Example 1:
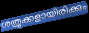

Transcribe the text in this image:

ശത്രുക്കളായിരിക്കും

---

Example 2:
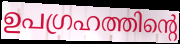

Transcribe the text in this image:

ഉപഗ്രഹത്തിന്റെ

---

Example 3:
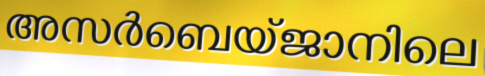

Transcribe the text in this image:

അസർബെയ്ജാനിലെ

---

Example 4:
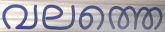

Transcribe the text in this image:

വലത്തെ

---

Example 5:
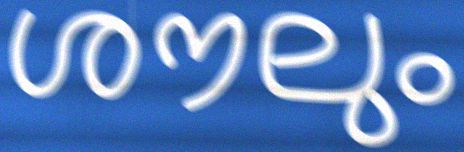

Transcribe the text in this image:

ശൗലും